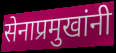
सेनाप्रमुखांनी